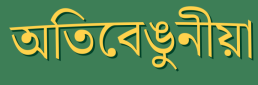
অতিবেঙুনীয়া